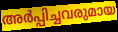
അർപ്പിച്ചവരുമായ